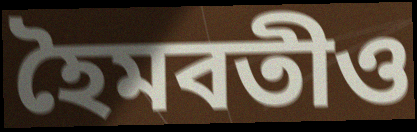
হৈমবতীও